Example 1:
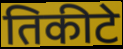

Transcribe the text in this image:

तिकीटे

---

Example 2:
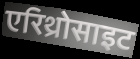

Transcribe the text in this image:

एरिथ्रोसाइट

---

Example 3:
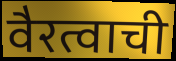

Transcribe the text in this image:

वैरत्वाची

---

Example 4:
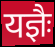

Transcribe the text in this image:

यज्ञैः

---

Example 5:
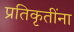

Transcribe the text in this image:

प्रतिकृतींना